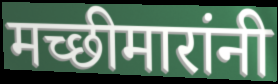
मच्छीमारांनी